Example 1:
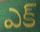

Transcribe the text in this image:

ఎక్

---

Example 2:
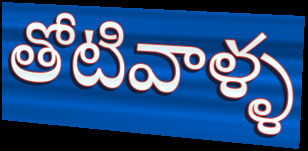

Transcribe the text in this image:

తోటివాళ్ళ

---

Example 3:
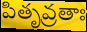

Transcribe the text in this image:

పితృవ్రతాః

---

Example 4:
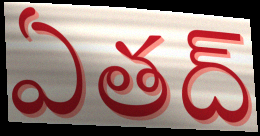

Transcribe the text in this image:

ఏతద్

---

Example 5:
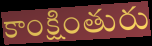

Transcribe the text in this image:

కాంక్షింతురు